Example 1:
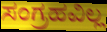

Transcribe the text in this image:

ಸಂಗ್ರಹವಿಲ್ಲ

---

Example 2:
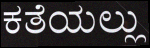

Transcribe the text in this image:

ಕತೆಯಲ್ಲು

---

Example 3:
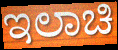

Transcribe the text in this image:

ಇಲಾಚಿ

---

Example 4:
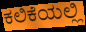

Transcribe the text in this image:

ಕಲಿಕೆಯಲ್ಲಿ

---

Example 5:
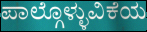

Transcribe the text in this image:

ಪಾಲ್ಗೊಳ್ಳುವಿಕೆಯ